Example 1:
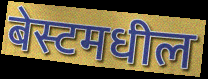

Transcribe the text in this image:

बेस्टमधील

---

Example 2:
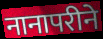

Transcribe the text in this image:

नानापरीने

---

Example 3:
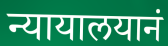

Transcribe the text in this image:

न्यायालयानं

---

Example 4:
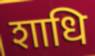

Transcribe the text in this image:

शाधि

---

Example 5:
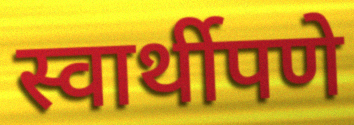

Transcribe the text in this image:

स्वार्थीपणे